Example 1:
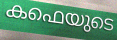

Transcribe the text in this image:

കഫെയുടെ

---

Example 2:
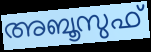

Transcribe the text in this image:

അബൂസുഫ്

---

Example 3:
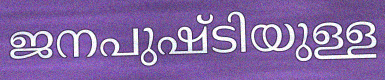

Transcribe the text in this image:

ജനപുഷ്ടിയുള്ള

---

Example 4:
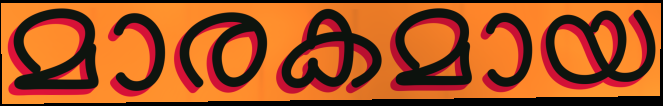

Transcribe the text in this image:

മാരകമായ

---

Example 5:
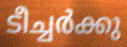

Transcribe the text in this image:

ടീച്ചർക്കു